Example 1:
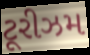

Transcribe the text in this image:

ટૂરીઝમ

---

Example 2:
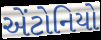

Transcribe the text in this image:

એંટોનિયો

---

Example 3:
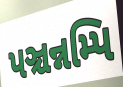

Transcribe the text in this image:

પઞ્ચન્નમ્પિ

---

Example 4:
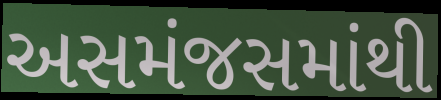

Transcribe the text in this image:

અસમંજસમાંથી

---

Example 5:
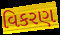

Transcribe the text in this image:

વિકરણ